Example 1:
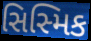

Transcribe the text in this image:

સિસ્મિક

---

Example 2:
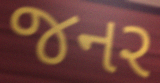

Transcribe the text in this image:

જનર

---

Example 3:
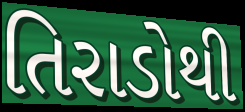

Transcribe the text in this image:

તિરાડોથી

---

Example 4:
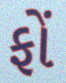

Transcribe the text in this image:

ફોં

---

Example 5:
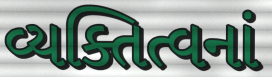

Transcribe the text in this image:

વ્યક્તિત્વનાં